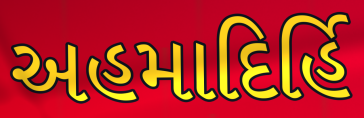
અહમાદિર્હિ